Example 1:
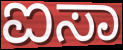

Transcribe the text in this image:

ಐಸಾ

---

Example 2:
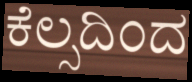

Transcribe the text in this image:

ಕೆಲ್ಸದಿಂದ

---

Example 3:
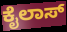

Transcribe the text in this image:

ಕೈಲಾಸ್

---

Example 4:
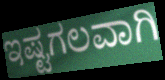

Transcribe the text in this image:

ಇಷ್ಟಗಲವಾಗಿ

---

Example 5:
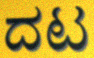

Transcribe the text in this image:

ದಟ